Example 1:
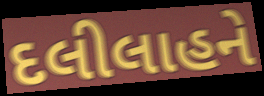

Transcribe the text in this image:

દલીલાહને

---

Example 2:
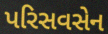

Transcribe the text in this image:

પરિસવસેન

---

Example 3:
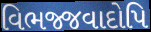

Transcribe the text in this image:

વિભજ્જવાદોપિ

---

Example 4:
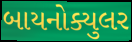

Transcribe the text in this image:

બાયનોક્યુલર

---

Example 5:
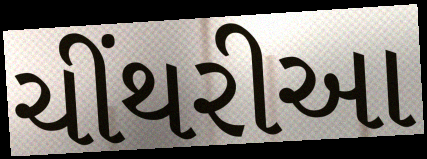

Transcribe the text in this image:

ચીંથરીઆ